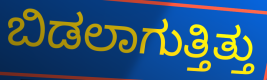
ಬಿಡಲಾಗುತ್ತಿತ್ತು